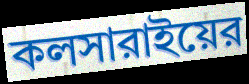
কলসারাইয়ের